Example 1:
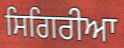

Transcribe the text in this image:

ਸਿਗਿਰੀਆ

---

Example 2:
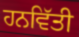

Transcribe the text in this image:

ਹਨਵਿੱਤੀ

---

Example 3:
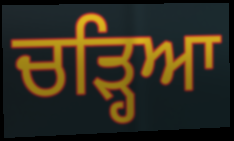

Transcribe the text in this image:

ਚੜ੍ਹਿਆ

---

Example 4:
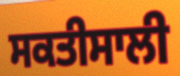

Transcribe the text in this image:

ਸਕਤੀਸਾਲੀ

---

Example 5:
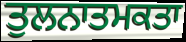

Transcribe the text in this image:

ਤੁਲਨਾਤਮਕਤਾ